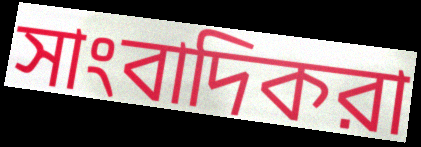
সাংবাদিকরা